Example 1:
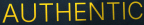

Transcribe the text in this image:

AUTHENTIC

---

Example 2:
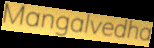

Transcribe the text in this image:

Mangalvedha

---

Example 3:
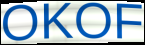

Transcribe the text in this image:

OKOF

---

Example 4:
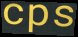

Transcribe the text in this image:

cps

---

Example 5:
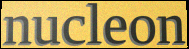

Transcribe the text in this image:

nucleon